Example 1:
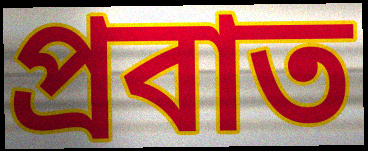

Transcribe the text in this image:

প্রবাত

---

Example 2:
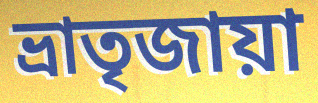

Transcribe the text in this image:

ভ্রাতৃজায়া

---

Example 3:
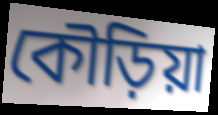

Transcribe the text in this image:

কৌড়িয়া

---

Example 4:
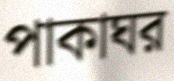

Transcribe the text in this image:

পাকাঘর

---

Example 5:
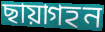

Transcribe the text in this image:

ছায়াগহন